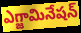
ఎగ్జామినేషన్